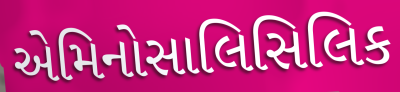
એમિનોસાલિસિલિક